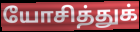
யோசித்துக்